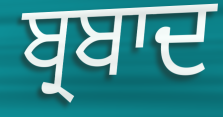
ਬ੍ਰਬਾਦ